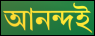
আনন্দই